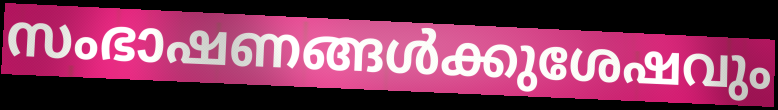
സംഭാഷണങ്ങൾക്കുശേഷവും